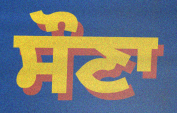
ਸੌਣਾ